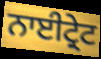
ਨਾਈਟ੍ਰੇਟ